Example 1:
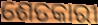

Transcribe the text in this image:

ଶେତକାରୀ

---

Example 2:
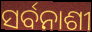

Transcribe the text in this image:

ସର୍ବନାଶୀ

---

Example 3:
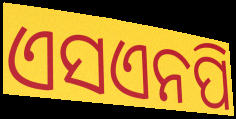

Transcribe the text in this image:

ଏସଏନପି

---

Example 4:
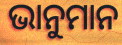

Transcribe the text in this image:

ଭାନୁମାନ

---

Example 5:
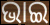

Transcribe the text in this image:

ଭାଇ